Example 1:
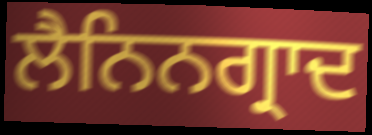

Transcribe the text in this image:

ਲੈਨਿਨਗ੍ਰਾਦ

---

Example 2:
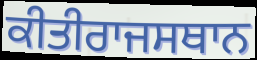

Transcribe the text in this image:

ਕੀਤੀਰਾਜਸਥਾਨ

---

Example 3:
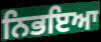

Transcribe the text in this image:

ਨਿਭਇਆ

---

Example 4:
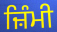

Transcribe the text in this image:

ਜ਼ਿੰਮੀ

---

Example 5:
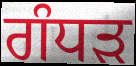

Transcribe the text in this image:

ਗੰਧੜ